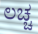
ಲಚ್ಚ